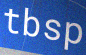
tbsp